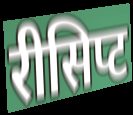
रीसिप्ट